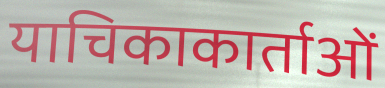
याचिकाकार्ताओं